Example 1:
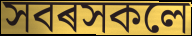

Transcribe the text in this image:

সবৰসকলে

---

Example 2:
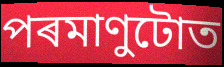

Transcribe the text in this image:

পৰমাণুটোত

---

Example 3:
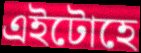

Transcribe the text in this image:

এইটোহে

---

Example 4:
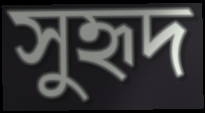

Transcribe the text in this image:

সুহৃদ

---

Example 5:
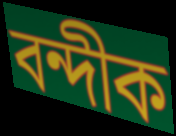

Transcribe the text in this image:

বন্দীক